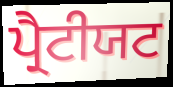
ਪ੍ਰੈਟੀਯਟ